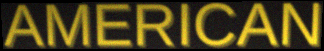
AMERICAN